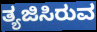
ತ್ಯಜಿಸಿರುವ